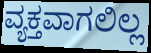
ವ್ಯಕ್ತವಾಗಲಿಲ್ಲ